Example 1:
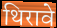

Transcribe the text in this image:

थिरावे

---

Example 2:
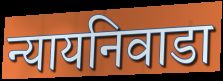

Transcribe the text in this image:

न्यायनिवाडा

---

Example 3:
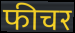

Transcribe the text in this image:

फीचर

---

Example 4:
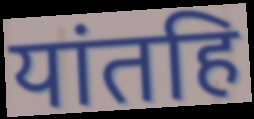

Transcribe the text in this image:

यांतहि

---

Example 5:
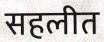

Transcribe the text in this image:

सहलीत